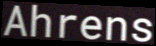
Ahrens